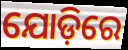
ଯୋଡ଼ିରେ